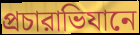
প্রচারাভিযানে